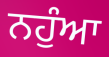
ਨਹੁੰਆ